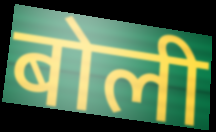
बोली